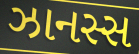
ઝાનસ્સ